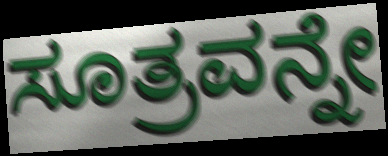
ಸೂತ್ರವನ್ನೇ